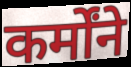
कर्मोंने